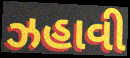
ઝહાવી